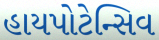
હાયપોટેન્સિવ